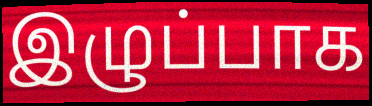
இழுப்பாக